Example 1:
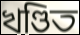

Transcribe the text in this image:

খণ্ডিত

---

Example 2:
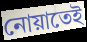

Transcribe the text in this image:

নোয়াতেই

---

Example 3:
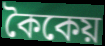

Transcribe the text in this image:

কৈকেয়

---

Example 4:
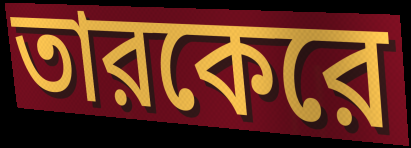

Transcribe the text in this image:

তারকেরে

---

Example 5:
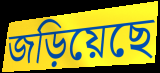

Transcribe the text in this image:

জড়িয়েছে